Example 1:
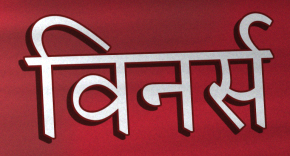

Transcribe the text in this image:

विनर्स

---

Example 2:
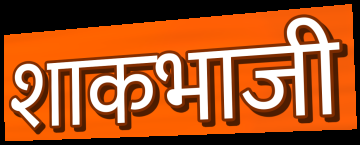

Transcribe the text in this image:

शाकभाजी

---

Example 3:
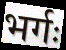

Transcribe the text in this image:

भर्गः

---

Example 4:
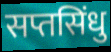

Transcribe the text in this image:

सप्तसिंधु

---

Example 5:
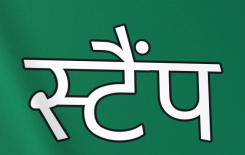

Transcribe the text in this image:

स्टैंप